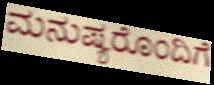
ಮನುಷ್ಯರೊಂದಿಗೆ